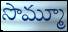
సొమ్మూ